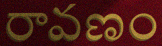
రావణం